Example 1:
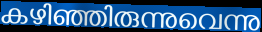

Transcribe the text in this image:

കഴിഞ്ഞിരുന്നുവെന്നു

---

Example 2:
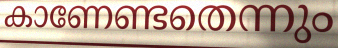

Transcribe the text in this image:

കാണേണ്ടതെന്നും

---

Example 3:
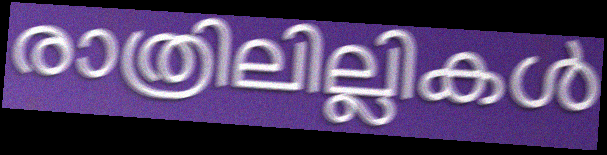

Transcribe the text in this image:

രാത്രിലില്ലികൾ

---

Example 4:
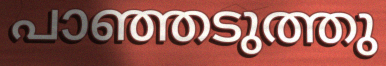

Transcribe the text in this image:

പാഞ്ഞടുത്തു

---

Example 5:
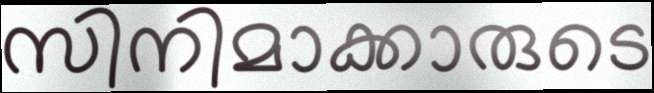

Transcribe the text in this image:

സിനിമാക്കാരുടെ